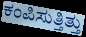
ಕಂಪಿಸುತ್ತಿತ್ತು